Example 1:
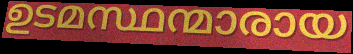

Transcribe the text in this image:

ഉടമസ്ഥന്മാരായ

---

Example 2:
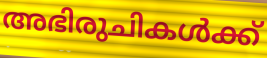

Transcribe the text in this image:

അഭിരുചികൾക്ക്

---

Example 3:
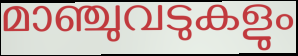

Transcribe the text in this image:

മാഞ്ചുവടുകളും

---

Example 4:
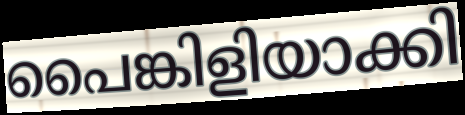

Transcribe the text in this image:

പൈങ്കിളിയാക്കി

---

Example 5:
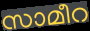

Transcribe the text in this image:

സാമീറ